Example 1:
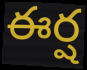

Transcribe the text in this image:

ఈర్ష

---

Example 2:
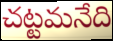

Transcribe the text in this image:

చట్టమనేది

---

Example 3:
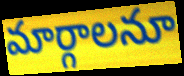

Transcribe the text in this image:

మార్గాలనూ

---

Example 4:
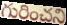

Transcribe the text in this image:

గురించని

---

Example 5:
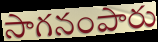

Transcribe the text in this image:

సాగనంపారు